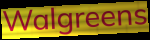
Walgreens